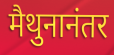
मैथुनानंतर